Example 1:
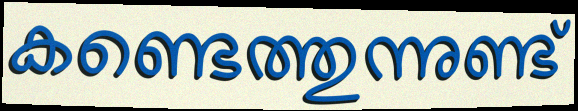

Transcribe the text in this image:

കണ്ടെത്തുന്നുണ്ട്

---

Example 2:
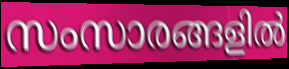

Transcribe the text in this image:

സംസാരങ്ങളിൽ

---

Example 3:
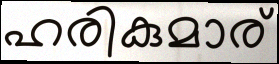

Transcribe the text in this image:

ഹരികുമാര്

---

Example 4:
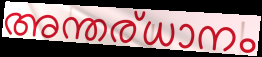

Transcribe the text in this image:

അന്തര്ധാനം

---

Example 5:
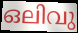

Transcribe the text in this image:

ഒലിവു